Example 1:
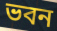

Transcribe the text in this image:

ভবন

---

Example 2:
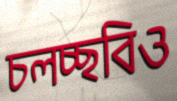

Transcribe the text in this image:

চলচ্ছবিও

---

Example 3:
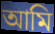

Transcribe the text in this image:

আমি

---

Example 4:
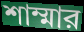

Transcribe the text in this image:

শাম্মার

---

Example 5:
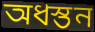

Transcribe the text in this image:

অধস্তন